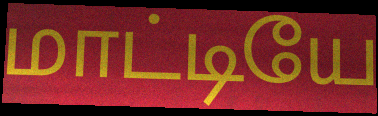
மாட்டியே